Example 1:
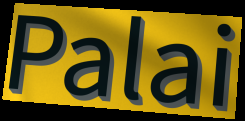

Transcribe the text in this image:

Palai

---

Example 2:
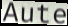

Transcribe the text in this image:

Aute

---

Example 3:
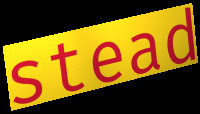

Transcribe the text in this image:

stead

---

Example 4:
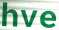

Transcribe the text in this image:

hve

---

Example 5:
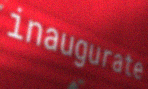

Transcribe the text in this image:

inaugurate